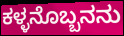
ಕಳ್ಳನೊಬ್ಬನನು